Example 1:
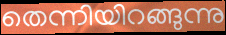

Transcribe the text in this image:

തെന്നിയിറങ്ങുന്നു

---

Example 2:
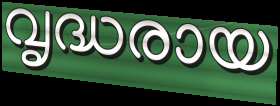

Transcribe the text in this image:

വൃദ്ധരായ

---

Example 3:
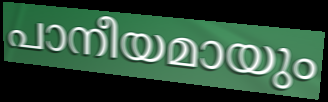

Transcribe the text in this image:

പാനീയമായും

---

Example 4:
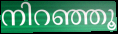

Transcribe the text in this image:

നിറഞ്ഞൂ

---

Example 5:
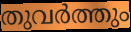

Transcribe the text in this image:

തുവർത്തും